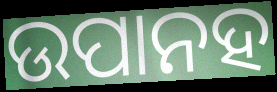
ଉପାନହ